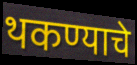
थकण्याचे